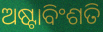
ଅଷ୍ଟାବିଂଶତି